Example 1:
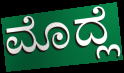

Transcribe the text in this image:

ಮೊದ್ಲೆ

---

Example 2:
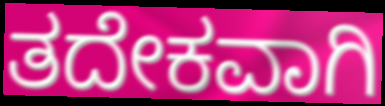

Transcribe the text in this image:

ತದೇಕವಾಗಿ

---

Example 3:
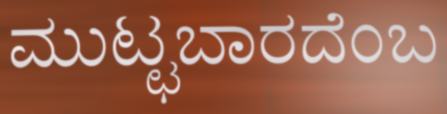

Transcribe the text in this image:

ಮುಟ್ಟಬಾರದೆಂಬ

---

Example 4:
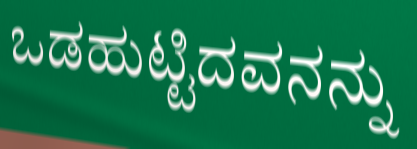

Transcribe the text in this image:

ಒಡಹುಟ್ಟಿದವನನ್ನು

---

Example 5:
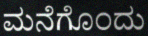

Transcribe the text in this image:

ಮನೆಗೊಂದು